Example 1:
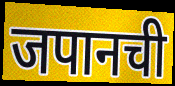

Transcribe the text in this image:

जपानची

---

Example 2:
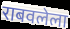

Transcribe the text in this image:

राबवलेला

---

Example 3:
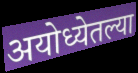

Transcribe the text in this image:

अयोध्येतल्या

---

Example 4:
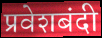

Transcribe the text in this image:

प्रवेशबंदी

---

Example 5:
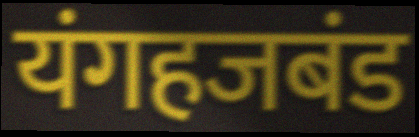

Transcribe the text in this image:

यंगहजबंड